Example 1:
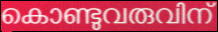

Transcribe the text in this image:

കൊണ്ടുവരുവിന്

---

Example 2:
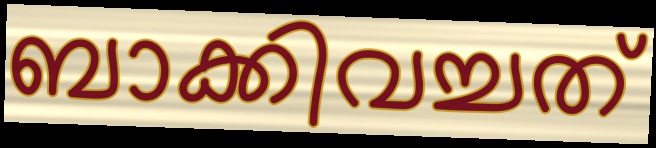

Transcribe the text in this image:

ബാക്കിവച്ചത്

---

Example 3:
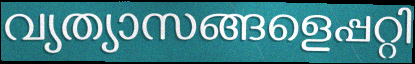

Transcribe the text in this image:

വ്യത്യാസങ്ങളെപ്പറ്റി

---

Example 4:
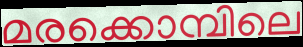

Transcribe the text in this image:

മരക്കൊമ്പിലെ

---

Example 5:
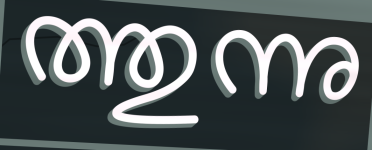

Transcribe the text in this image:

ത്തുന്നു